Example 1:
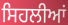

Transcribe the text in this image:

ਸਿਹਲੀਆਂ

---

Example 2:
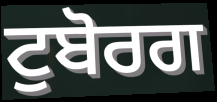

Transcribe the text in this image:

ਟੁਬੋਰਗ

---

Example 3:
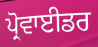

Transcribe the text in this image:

ਪ੍ਰੋਵਾਈਡਰ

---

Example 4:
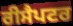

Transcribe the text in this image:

ਰੀਸੈਪਟਰ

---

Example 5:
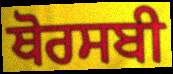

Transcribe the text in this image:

ਥੋਰਸਬੀ